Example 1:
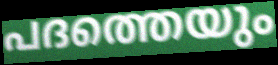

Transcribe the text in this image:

പദത്തെയും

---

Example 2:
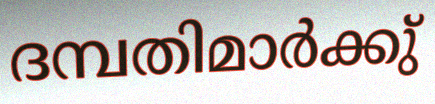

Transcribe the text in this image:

ദമ്പതിമാർക്കു്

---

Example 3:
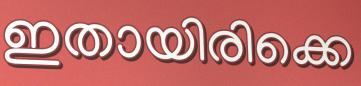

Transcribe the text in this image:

ഇതായിരിക്കെ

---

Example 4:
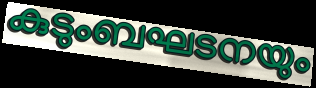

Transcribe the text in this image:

കുടുംബഘടനയും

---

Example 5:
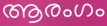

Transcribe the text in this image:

ആരംഗം